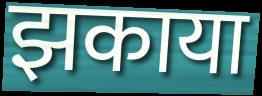
झकाया